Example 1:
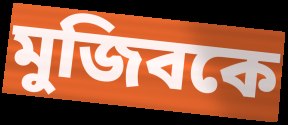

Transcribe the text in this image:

মুজিবকে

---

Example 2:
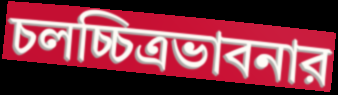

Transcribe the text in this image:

চলচ্চিত্রভাবনার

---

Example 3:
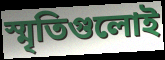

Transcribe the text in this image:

স্মৃতিগুলোই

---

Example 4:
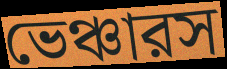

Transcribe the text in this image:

ভেঞ্চারস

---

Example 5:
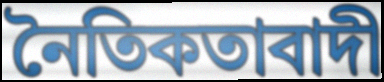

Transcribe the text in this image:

নৈতিকতাবাদী